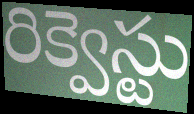
రిక్వెస్టు